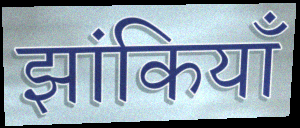
झांकियाँ